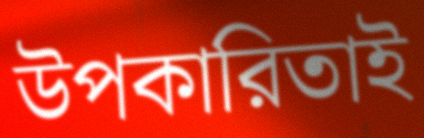
উপকারিতাই